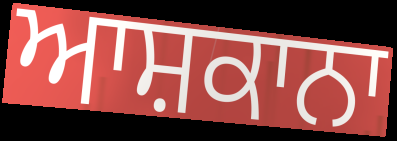
ਆਸ਼ਕਾਨਾ